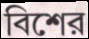
বিশের